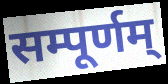
सम्पूर्णम्